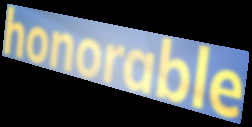
honorable